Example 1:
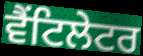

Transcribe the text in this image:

ਵੈਂਟਿਲੇਟਰ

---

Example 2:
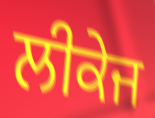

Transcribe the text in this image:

ਲੀਕੇਜ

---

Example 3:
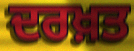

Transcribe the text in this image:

ਦਰਖ਼ਤ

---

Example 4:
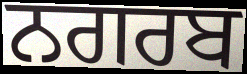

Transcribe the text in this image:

ਨਗਰਬ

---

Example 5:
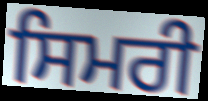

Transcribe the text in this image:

ਸਿਮਰੀ